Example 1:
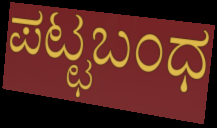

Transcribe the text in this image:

ಪಟ್ಟಬಂಧ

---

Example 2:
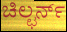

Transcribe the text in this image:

ಚಿಲ್ಟರ್ನ್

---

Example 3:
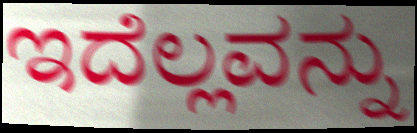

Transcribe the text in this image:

ಇದೆಲ್ಲವನ್ನು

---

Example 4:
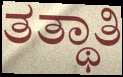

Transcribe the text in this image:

ತತ್ಥಾತಿ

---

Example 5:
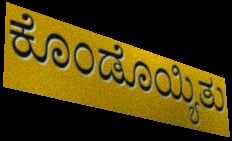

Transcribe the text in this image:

ಕೊಂಡೊಯ್ಯಿತು